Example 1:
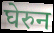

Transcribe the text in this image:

घेरुन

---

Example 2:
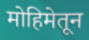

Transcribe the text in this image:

मोहिमेतून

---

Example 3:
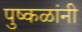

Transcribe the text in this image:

पुष्कळांनी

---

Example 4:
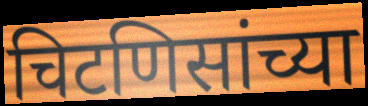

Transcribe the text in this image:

चिटणिसांच्या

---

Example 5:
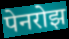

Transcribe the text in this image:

पेनरोझ